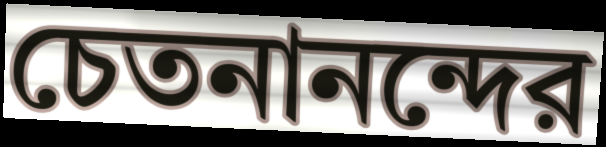
চেতনানন্দের